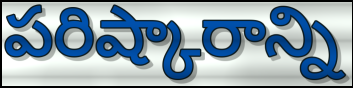
పరిష్కారాన్ని